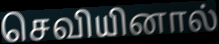
செவியினால்